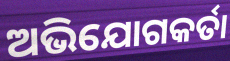
ଅଭିଯୋଗକର୍ତା